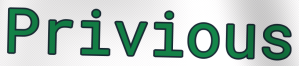
Privious